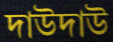
দাউদাউ